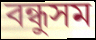
বন্ধুসম